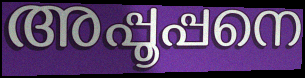
അപ്പൂപ്പനെ